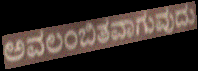
ಅವಲಂಬಿತವಾಗುವುದು